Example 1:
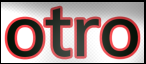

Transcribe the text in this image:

otro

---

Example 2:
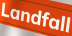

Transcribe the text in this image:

Landfall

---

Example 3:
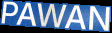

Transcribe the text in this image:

PAWAN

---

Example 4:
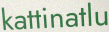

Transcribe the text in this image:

kattinatlu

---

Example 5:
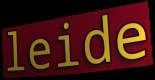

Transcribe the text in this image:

leide